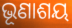
ଭୂଣାଶୟ